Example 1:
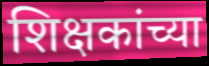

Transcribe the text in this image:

शिक्षकांच्या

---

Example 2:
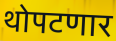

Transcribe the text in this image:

थोपटणार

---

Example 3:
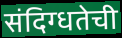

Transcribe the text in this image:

संदिग्धतेची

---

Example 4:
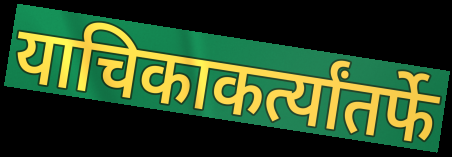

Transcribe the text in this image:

याचिकाकर्त्यांतर्फे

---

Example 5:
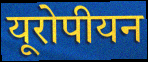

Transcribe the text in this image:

यूरोपीयन